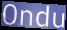
Ondu